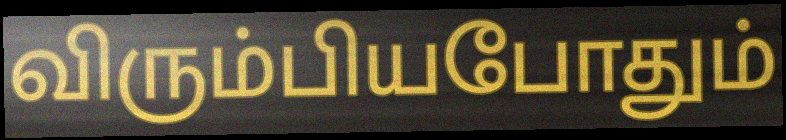
விரும்பியபோதும்